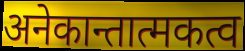
अनेकान्तात्मकत्व